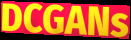
DCGANs